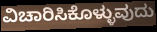
ವಿಚಾರಿಸಿಕೊಳ್ಳುವುದು